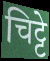
चिट्टे